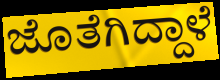
ಜೊತೆಗಿದ್ದಾಳೆ